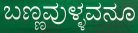
ಬಣ್ಣವುಳ್ಳವನೂ